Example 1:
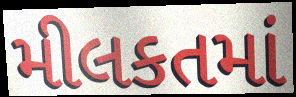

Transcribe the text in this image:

મીલકતમાં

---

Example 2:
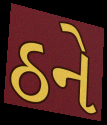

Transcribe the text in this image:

ઠને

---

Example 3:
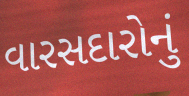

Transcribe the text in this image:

વારસદારોનું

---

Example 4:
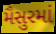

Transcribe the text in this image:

મૈસુરમાં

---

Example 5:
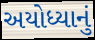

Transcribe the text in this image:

અયોધ્યાનું